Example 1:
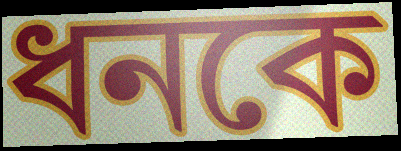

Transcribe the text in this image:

ধনকে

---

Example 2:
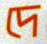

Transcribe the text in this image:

দে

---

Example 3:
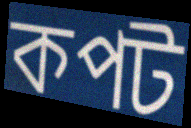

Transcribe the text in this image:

কপট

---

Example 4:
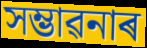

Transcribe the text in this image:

সম্ভাৱনাৰ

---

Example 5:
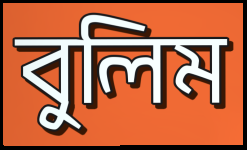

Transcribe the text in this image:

বুলিম